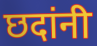
छदांनी